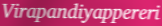
Virapandiyappereri